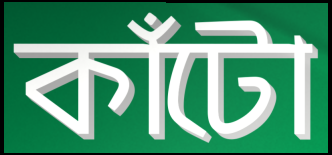
কাঁটো